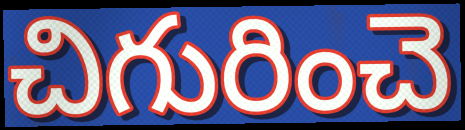
చిగురించె